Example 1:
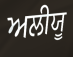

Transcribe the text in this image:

ਅਲੀਯੂ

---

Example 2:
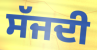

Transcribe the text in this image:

ਸੱਜਦੀ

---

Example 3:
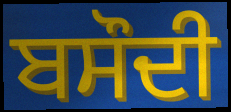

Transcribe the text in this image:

ਬਸੌਦੀ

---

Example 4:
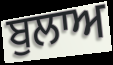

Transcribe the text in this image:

ਬੁਲਾਅ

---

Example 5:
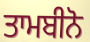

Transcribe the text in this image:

ਤਾਮਬੀਨੋ